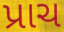
પ્રાચ